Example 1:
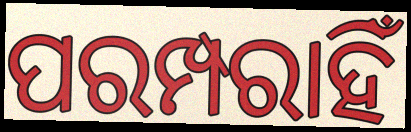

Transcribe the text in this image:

ପରମ୍ପରାହିଁ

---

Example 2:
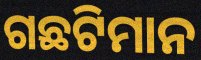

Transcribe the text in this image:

ଗଛଟିମାନ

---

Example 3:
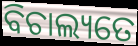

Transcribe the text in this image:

ବିଚାଲ୍ୟତେ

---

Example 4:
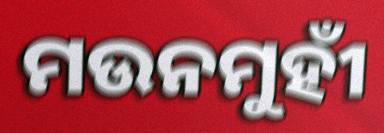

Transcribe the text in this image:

ମଉନମୁହୀଁ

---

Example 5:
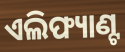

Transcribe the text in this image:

ଏଲିଫ୍ୟାଣ୍ଟ